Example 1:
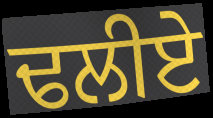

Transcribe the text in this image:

ਢਲੀਏ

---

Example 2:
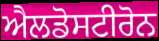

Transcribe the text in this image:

ਐਲਡੋਸਟੀਰੋਨ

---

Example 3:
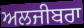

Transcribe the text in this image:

ਅਲਜੀਬਰਾ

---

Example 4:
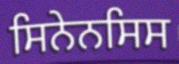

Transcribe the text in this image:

ਸਿਨੇਨਸਿਸ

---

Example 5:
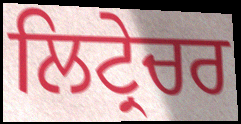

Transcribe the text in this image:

ਲਿਟ੍ਰੇਚਰ